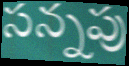
సన్నపు